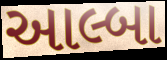
આલ્બા